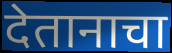
देतानाचा